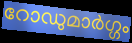
റോഡുമാർഗ്ഗം